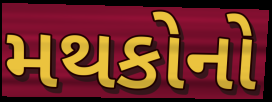
મથકોનો